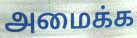
அமைக்க